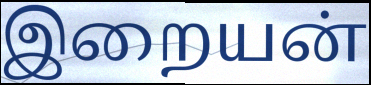
இறையன்